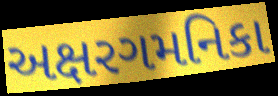
અક્ષરગમનિકા